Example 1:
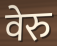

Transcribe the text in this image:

वेरु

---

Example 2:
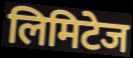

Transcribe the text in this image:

लिमिटेज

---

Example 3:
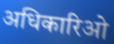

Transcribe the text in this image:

अधिकारिओ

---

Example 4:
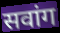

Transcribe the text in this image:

सवांग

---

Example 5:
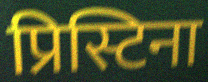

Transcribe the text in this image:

प्रिस्टिना